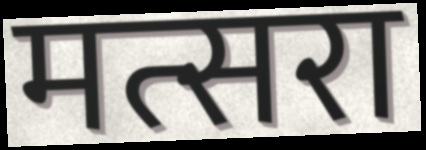
मत्सरा